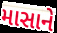
માસાને